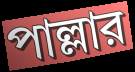
পাল্লার